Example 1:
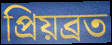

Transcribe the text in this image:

প্রিয়ব্রত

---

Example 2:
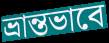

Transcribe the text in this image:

ভ্রান্তভাবে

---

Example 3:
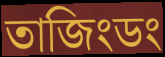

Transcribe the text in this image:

তাজিংডং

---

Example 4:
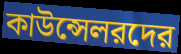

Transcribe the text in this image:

কাউন্সেলরদের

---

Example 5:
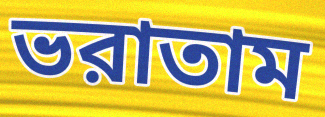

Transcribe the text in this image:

ভরাতাম